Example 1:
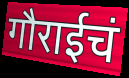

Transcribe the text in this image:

गौराईचं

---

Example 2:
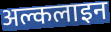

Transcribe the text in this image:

अल्कलाइन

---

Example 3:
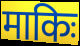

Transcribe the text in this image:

माकिः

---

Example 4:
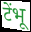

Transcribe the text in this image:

टेंभू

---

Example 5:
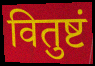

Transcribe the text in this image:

वितुष्टं